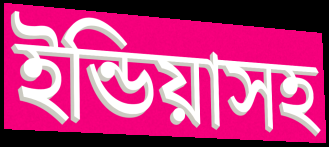
ইন্ডিয়াসহ